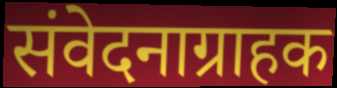
संवेदनाग्राहक